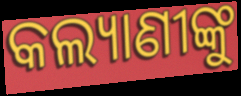
କଲ୍ୟାଣୀଙ୍କୁ